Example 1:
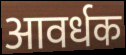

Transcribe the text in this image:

आवर्धक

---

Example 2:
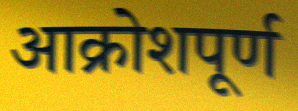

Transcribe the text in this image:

आक्रोशपूर्ण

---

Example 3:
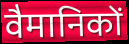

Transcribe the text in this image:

वैमानिकों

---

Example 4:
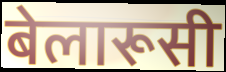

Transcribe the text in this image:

बेलारूसी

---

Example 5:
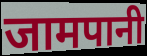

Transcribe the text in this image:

जामपानी